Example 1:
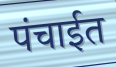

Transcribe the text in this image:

पंचाईत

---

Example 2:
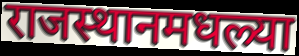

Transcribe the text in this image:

राजस्थानमधल्या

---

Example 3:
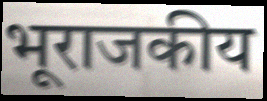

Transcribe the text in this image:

भूराजकीय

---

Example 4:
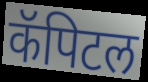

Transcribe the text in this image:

कॅपिटल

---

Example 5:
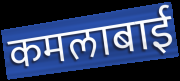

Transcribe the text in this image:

कमलाबाई